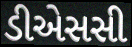
ડીએસસી